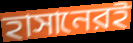
হাসানেরই